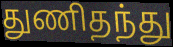
துணிதந்து